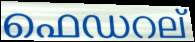
ഫെഡറല്